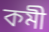
কমী